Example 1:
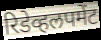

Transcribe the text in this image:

रिडेव्हलपमेंट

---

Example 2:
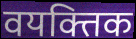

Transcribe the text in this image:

वयक्तिक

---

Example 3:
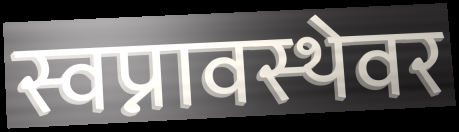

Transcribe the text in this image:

स्वप्नावस्थेवर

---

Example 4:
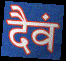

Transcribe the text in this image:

दैवं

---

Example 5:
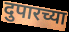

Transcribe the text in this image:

दुपारच्या